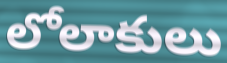
లోలాకులు